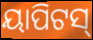
ୟାପିଟସ୍